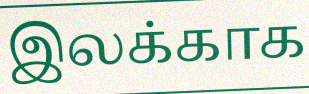
இலக்காக